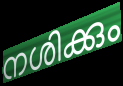
നശിക്കും